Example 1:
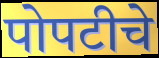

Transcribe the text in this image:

पोपटीचे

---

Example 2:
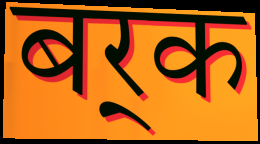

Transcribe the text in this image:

बर्क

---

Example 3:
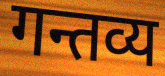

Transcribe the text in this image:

गन्तव्य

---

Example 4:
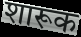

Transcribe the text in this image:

शारूक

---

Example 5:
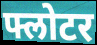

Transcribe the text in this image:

फ्लोटर